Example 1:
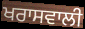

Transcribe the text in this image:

ਖਰਾਸਵਾਲੀ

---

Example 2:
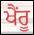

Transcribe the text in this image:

ਖੈਂਰੂ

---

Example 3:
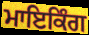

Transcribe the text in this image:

ਮਾਇਕਿੰਗ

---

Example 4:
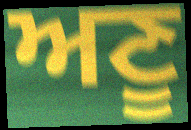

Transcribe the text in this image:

ਅਣੂ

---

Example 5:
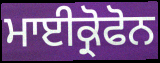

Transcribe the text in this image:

ਮਾਈਕ੍ਰੋਫੋਨ